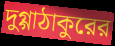
দুগ্গাঠাকুরের